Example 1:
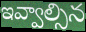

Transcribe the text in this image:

ఇవ్వాల్సిన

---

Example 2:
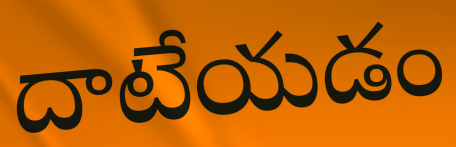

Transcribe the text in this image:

దాటేయడం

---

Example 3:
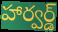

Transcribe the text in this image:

హార్వర్డ్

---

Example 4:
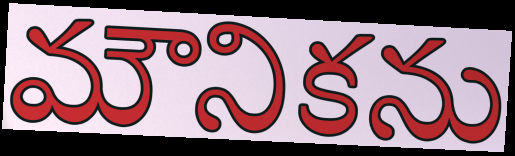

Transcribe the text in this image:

మౌనికను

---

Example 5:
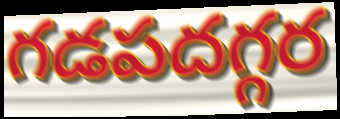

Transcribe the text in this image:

గడపదగ్గర